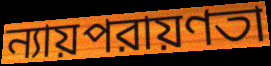
ন্যায়পরায়ণতা